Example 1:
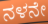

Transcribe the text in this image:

ನಳನೇ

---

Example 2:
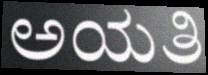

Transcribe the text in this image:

ಅಯತಿ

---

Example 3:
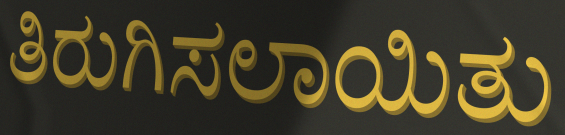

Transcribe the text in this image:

ತಿರುಗಿಸಲಾಯಿತು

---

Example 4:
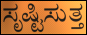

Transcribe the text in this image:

ಸೃಷ್ಟಿಸುತ್ತ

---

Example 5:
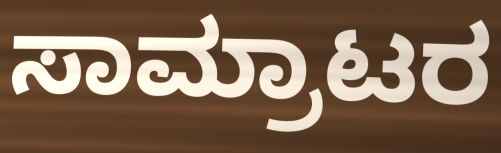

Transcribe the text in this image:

ಸಾಮ್ರಾಟರ